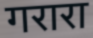
गरारा